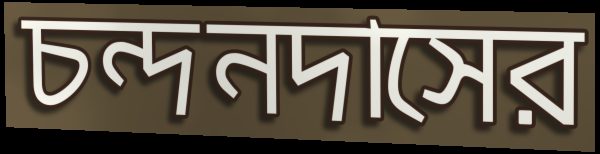
চন্দনদাসের